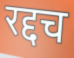
रद्दच